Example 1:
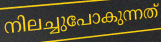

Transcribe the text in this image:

നിലച്ചുപോകുന്നത്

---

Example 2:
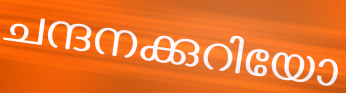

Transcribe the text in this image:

ചന്ദനക്കുറിയോ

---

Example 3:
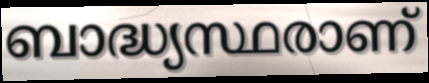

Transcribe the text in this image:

ബാദ്ധ്യസ്ഥരാണ്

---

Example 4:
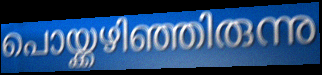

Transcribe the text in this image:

പൊയ്ക്കഴിഞ്ഞിരുന്നു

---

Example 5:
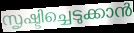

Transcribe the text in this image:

സൃഷ്ടിച്ചെടുക്കാൻ